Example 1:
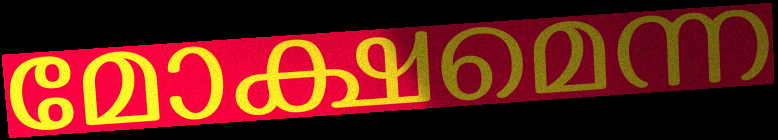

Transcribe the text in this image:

മോക്ഷമെന്ന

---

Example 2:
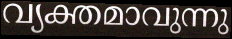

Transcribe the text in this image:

വ്യക്തമാവുന്നു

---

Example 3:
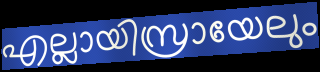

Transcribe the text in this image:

എല്ലായിസ്രായേലും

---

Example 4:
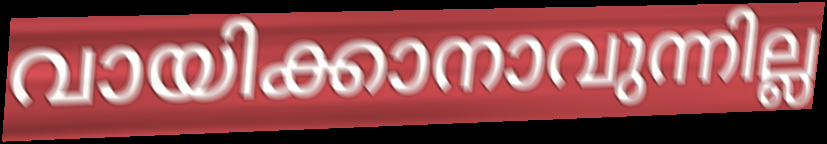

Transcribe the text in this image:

വായിക്കാനാവുന്നില്ല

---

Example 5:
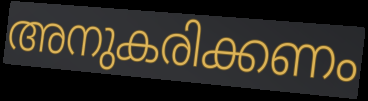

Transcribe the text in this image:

അനുകരിക്കണം